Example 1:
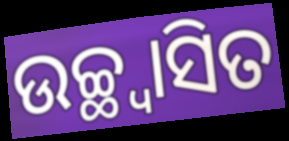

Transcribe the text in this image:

ଉଚ୍ଛ୍ୱାସିତ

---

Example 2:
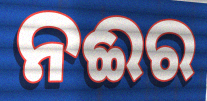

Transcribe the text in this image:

ନଈର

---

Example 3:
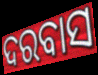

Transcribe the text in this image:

ଦରବାସ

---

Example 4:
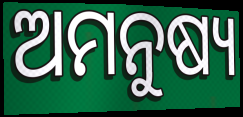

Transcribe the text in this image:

ଅମନୁଷ୍ୟ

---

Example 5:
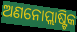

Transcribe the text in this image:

ଅଣନୋପ୍ଲାଷ୍ଟିକ